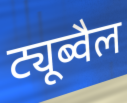
ट्यूब्वैल